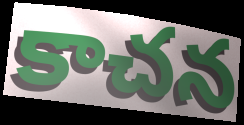
కాచన